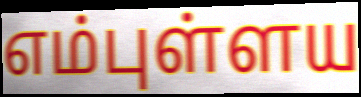
எம்புள்ளய